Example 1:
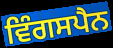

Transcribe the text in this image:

ਵਿੰਗਸਪੈਨ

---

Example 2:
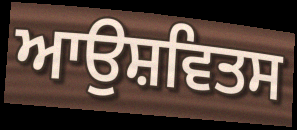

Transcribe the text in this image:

ਆਉਸ਼ਵਿਤਸ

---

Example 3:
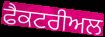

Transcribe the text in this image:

ਫੈਕਟਰੀਅਲ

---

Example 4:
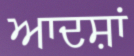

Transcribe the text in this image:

ਆਦਸ਼ਾਂ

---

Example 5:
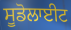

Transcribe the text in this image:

ਸੂਡੋਲਾਈਟ